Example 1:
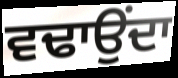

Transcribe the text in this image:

ਵਢਾਉਂਦਾ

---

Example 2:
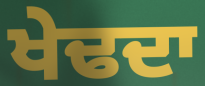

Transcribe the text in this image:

ਖੇਢਦਾ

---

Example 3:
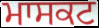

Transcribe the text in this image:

ਮਾਸਕਟ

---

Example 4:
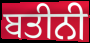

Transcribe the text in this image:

ਬਤੀਨੀ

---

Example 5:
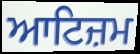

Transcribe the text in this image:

ਆਟਿਜ਼ਮ